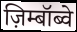
ज़िम्बॉब्वे